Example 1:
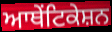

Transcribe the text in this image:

ਆਥੇਂਟਿਕੇਸ਼ਨ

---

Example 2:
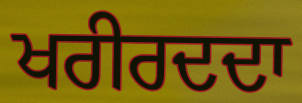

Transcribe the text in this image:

ਖਰੀਰਦਦਾ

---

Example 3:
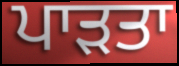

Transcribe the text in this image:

ਪਾੜਤਾ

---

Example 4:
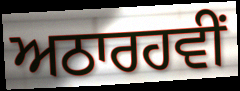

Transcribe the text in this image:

ਅਠਾਰਹਵੀਂ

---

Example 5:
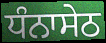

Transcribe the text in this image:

ਧੰਨਾਸੇਠ